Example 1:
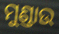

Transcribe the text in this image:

ମୁଣ୍ଡାଉ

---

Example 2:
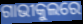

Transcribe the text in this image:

ଗାଭୀକୁଲରେ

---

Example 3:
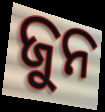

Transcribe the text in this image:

ଜୁନ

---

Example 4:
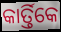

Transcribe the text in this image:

କାର୍ତ୍ତିକେ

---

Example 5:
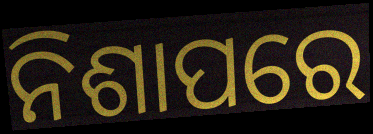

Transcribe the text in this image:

ନିଶାପରେ